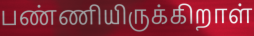
பண்ணியிருக்கிறாள்